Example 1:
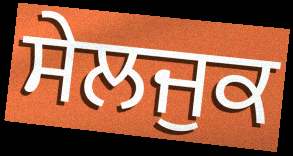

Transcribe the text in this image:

ਸੇਲਜੁਕ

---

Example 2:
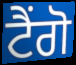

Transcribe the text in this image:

ਟੈਂਗੋ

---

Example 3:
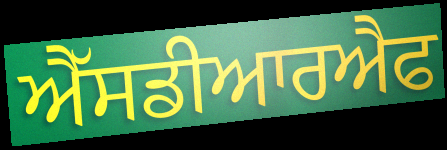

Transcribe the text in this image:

ਐੱਸਡੀਆਰਐਫ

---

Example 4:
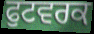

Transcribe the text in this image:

ਫੁਟਵਰਕ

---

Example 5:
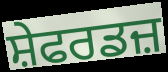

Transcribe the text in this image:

ਸ਼ੇਫਰਡਜ਼